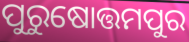
ପୁରୁଷୋତ୍ତମପୁର